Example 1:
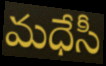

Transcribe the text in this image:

మధేసీ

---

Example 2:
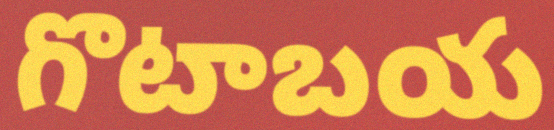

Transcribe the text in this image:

గొటాబయ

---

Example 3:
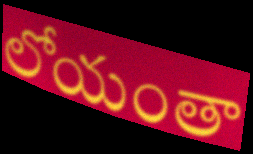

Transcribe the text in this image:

లోయంతా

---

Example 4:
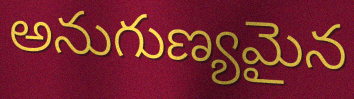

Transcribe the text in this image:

అనుగుణ్యమైన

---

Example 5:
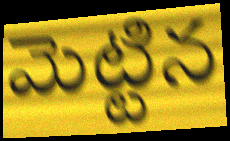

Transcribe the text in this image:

మెట్టిన